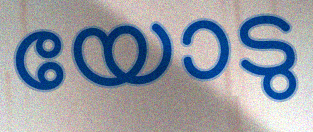
യോടു